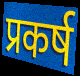
प्रकर्ष